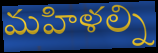
మహిళల్ని